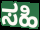
ಸಹಿ